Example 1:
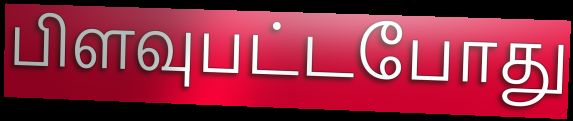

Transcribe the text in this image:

பிளவுபட்டபோது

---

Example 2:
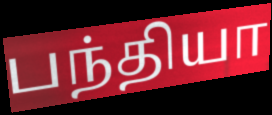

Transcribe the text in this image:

பந்தியா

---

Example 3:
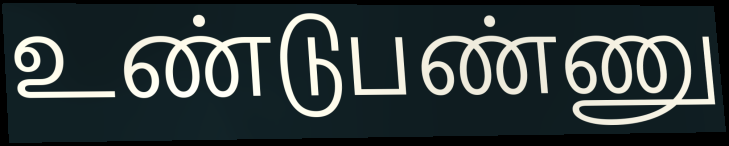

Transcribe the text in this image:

உண்டுபண்ணு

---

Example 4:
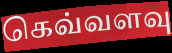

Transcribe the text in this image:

கெவ்வளவு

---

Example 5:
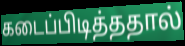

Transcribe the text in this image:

கடைப்பிடித்ததால்